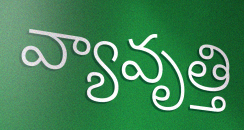
వ్యావృత్తి